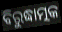
ବିରୁଦ୍ଧାତ୍ମକ